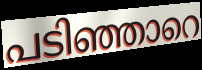
പടിഞ്ഞാറെ